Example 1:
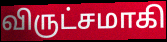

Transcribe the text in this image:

விருட்சமாகி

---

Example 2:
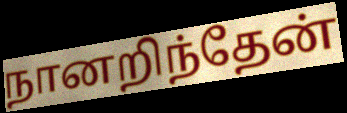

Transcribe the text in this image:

நானறிந்தேன்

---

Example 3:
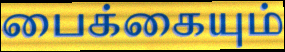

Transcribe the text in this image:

பைக்கையும்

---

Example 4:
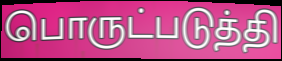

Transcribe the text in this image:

பொருட்படுத்தி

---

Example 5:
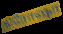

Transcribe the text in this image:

நிரோஷா